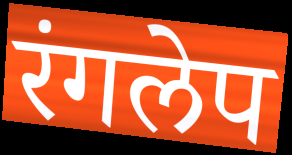
रंगलेप